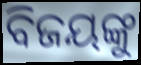
ବିଜୟଙ୍କୁ